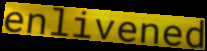
enlivened